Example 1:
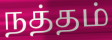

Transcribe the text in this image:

நத்தம்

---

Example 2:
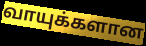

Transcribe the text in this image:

வாயுக்களான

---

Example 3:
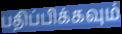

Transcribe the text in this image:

பதிப்பிக்கவும்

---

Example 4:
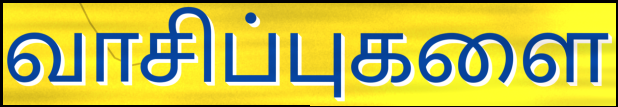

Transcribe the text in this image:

வாசிப்புகளை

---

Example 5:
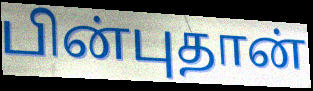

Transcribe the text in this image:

பின்புதான்